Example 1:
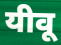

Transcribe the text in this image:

यीवू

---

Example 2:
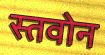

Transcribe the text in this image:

स्तवोन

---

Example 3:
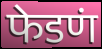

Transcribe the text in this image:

फेडणं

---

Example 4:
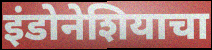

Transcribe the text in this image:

इंडोनेशियाचा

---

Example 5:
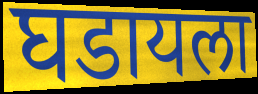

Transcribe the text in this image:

घडायला